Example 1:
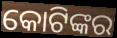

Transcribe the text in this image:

କୋଟିଙ୍କର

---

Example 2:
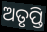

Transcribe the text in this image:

ଅତୃପ୍ତି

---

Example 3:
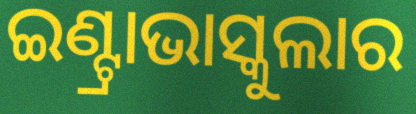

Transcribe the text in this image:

ଇଣ୍ଟ୍ରାଭାସ୍କୁଲାର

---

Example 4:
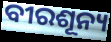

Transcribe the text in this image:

ବୀରଶୂନ୍ୟ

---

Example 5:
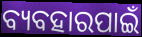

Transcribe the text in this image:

ବ୍ୟବହାରପାଇଁ